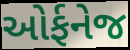
ઓર્ફનેજ